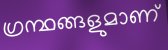
ഗ്രന്ഥങ്ങളുമാണ്